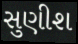
સુણીશ